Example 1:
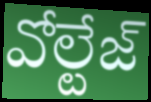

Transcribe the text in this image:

వోల్టేజ్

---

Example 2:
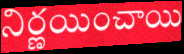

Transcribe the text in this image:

నిర్ణయించాయి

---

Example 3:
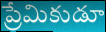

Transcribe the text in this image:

ప్రేమికుడూ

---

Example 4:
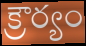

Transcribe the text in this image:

క్రౌర్యం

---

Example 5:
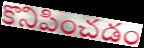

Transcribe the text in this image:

కొనిపించడం